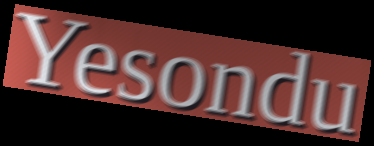
Yesondu